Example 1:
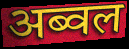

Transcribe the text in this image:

अब्वल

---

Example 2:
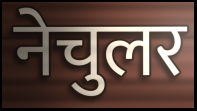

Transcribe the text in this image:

नेचुलर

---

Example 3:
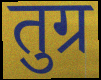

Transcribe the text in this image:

तुग्र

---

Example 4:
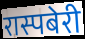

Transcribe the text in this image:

रास्पबेरी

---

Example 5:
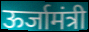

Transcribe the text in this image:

ऊर्जामंत्री